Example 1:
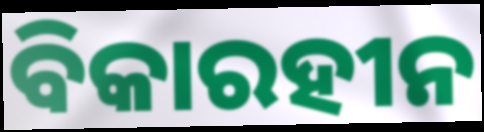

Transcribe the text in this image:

ବିକାରହୀନ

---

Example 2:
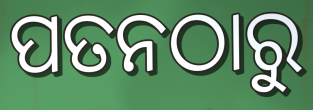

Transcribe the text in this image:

ପତନଠାରୁ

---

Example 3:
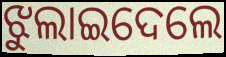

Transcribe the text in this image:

ଝୁଲାଇଦେଲେ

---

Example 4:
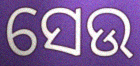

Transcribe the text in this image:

ସେଉ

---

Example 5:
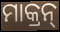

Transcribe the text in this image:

ମାକ୍ରନ୍